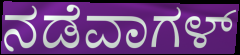
ನಡೆವಾಗಳ್